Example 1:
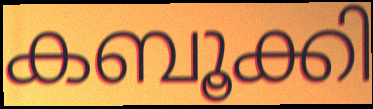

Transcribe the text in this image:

കബൂക്കി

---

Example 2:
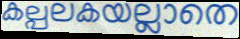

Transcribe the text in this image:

കല്പലകയല്ലാതെ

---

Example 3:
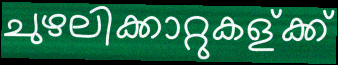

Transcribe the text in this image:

ചുഴലിക്കാറ്റുകള്ക്ക്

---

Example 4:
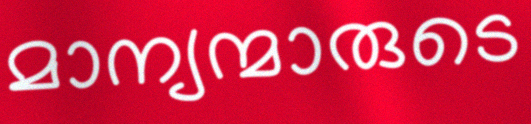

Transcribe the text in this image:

മാന്യന്മാരുടെ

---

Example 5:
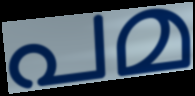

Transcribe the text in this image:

പമ